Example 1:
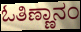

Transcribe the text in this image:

ಓತಿಣ್ಣಾನಂ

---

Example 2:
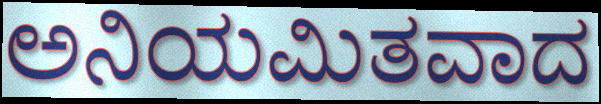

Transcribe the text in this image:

ಅನಿಯಮಿತವಾದ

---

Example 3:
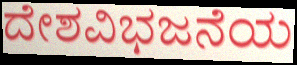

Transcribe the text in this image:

ದೇಶವಿಭಜನೆಯ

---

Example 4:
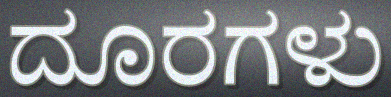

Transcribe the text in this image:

ದೂರಗಳು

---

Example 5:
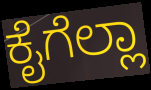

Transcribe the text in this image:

ಕೈಗೆಲ್ಲಾ